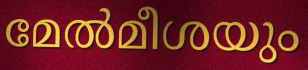
മേൽമീശയും